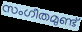
സംഗീതമുണ്ട്